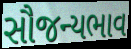
સૌજન્યભાવ